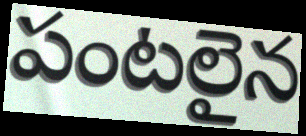
పంటలైన